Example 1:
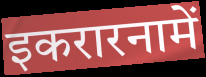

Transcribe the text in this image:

इकरारनामें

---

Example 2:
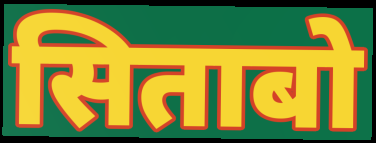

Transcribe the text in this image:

सिताबो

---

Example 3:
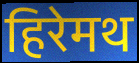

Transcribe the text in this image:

हिरेमथ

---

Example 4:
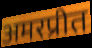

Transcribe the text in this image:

अमरप्रीत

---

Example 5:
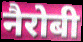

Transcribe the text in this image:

नैरोबी